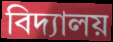
বিদ্যালয়